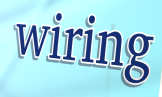
wiring